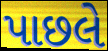
પાછલે